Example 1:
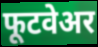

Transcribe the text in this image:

फूटवेअर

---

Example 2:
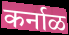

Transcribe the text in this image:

कर्नाळ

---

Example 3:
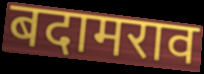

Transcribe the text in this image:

बदामराव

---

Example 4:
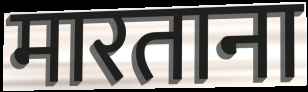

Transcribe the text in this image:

मारताना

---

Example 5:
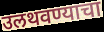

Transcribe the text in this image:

उलथवण्याचा